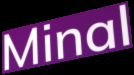
Minal